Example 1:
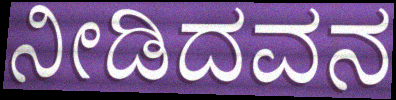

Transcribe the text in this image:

ನೀಡಿದವನ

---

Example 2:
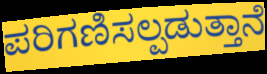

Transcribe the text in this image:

ಪರಿಗಣಿಸಲ್ಪಡುತ್ತಾನೆ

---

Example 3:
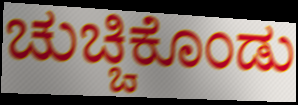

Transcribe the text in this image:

ಚುಚ್ಚಿಕೊಂಡು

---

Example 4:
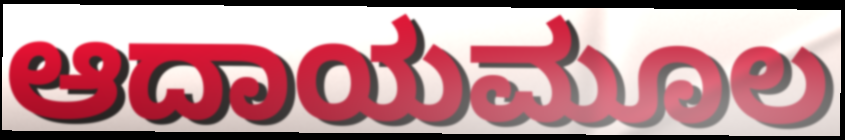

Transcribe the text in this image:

ಆದಾಯಮೂಲ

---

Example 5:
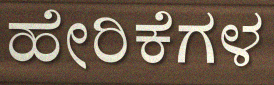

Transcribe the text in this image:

ಹೇರಿಕೆಗಳ